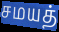
சமயத்